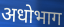
अधोभाग